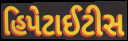
હિપેટાઈટીસ